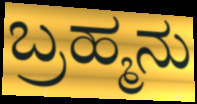
ಬ್ರಹ್ಮನು